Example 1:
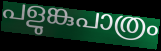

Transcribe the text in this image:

പളുങ്കുപാത്രം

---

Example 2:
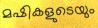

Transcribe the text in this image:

മഷികളുടെയും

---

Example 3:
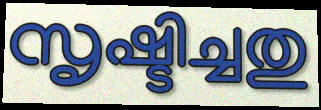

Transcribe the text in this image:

സൃഷ്ടിച്ചതു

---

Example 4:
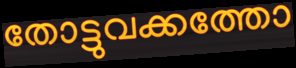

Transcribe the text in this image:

തോട്ടുവക്കത്തോ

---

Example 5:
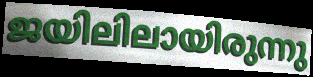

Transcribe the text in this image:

ജയിലിലായിരുന്നു